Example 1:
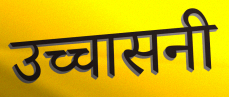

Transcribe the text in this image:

उच्चासनी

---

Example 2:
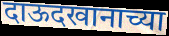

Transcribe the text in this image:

दाऊदखानाच्या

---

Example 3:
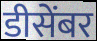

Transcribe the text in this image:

डीसेंबर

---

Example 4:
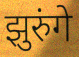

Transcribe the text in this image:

झुरुंगे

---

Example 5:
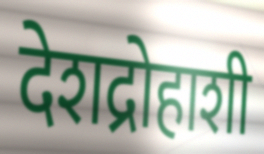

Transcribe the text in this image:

देशद्रोहाशी